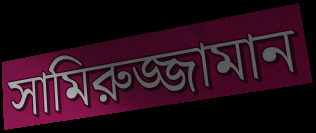
সামিরুজ্জামান